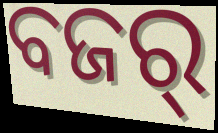
ବଜର୍